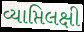
વ્યાપ્તિલક્ષી